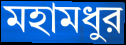
মহামধুর